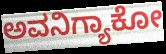
ಅವನಿಗ್ಯಾಕೋ